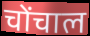
चोंचाल